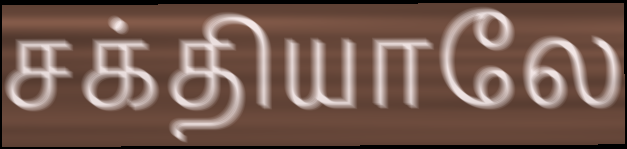
சக்தியாலே